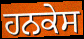
ਹਨਕੇਸ